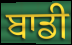
ਬਾਡੀ